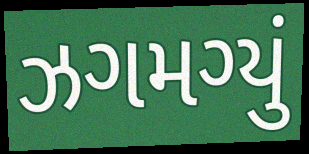
ઝગમગ્યું